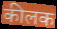
कीलक